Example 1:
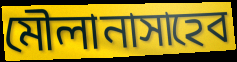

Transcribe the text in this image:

মৌলানাসাহেব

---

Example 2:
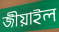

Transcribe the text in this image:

জীয়াইল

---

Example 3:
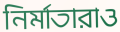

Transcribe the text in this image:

নির্মাতারাও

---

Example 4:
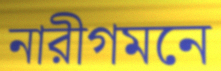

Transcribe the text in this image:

নারীগমনে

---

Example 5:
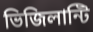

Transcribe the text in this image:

ভিজিলান্টি